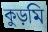
কুড়মি